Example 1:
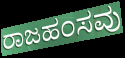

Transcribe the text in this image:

ರಾಜಹಂಸವು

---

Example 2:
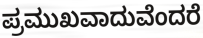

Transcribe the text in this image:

ಪ್ರಮುಖವಾದುವೆಂದರೆ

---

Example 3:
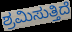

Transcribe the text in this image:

ಶ್ರಮಿಸುತ್ತಿದೆ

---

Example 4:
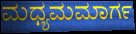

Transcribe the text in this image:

ಮಧ್ಯಮಮಾರ್ಗ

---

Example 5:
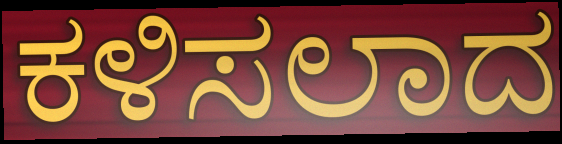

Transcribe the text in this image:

ಕಳಿಸಲಾದ